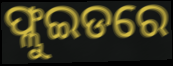
ଫ୍ଲୁଇଡରେ